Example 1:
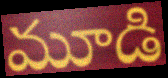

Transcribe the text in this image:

మూడి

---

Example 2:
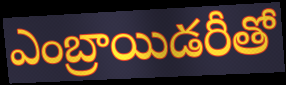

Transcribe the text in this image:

ఎంబ్రాయిడరీతో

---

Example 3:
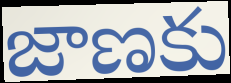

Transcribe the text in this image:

జాణకు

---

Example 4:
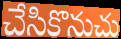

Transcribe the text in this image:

చేసికొనుచు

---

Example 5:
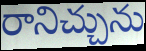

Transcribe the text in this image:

రానిచ్చును